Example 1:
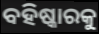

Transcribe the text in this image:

ବହିଷ୍କାରକୁ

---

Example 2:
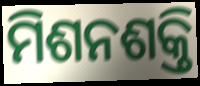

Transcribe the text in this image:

ମିଶନଶକ୍ତି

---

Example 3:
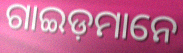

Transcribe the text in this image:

ଗାଇଡ଼ମାନେ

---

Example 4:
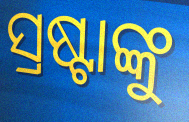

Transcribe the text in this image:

ସ୍ରଷ୍ଟାଙ୍କୁ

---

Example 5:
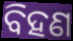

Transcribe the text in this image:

ବିହଣ